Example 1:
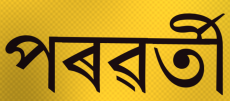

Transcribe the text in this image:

পৰৱৰ্তী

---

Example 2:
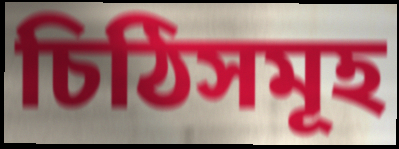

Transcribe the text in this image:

চিঠিসমূহ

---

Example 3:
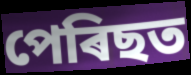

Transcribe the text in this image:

পেৰিছত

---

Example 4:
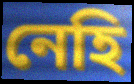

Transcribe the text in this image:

নেহি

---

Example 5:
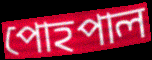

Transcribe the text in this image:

পোহপাল